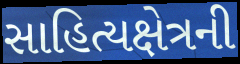
સાહિત્યક્ષેત્રની